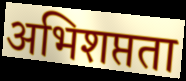
अभिशप्तता